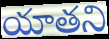
యాతని